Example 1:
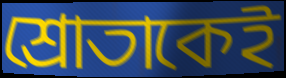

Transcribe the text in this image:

শ্রোতাকেই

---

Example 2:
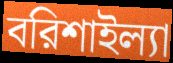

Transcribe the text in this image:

বরিশাইল্যা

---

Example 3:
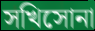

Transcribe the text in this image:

সখিসোনা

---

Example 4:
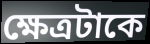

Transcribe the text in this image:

ক্ষেত্রটাকে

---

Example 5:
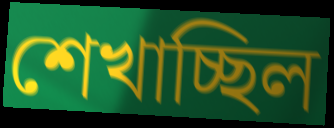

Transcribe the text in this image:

শেখাচ্ছিল